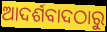
ଆଦର୍ଶବାଦଠାରୁ